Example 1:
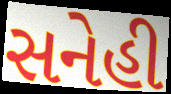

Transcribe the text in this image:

સનેહી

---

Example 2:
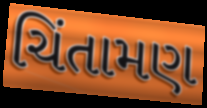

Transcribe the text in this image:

ચિંતામણ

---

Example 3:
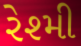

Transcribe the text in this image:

રેશ્મી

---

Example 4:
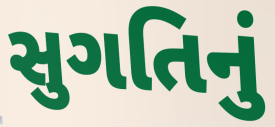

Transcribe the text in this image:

સુગતિનું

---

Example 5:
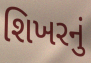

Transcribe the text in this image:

શિખરનું